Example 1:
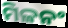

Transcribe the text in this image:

ମିଳନଂ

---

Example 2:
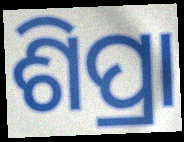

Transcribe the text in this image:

ଶିପ୍ରା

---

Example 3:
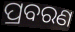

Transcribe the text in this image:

ପ୍ରବରଣ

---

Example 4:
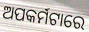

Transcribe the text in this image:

ଅପକର୍ମଟାରେ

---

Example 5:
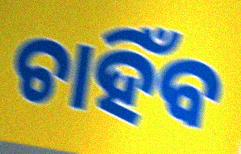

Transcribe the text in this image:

ଚାହିଁବ